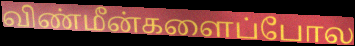
விண்மீன்களைப்போல